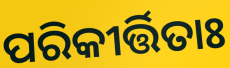
ପରିକୀର୍ତ୍ତିତାଃ